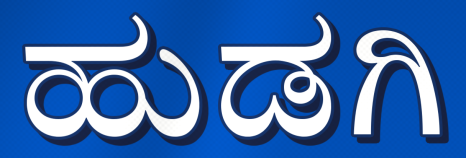
ಹುಡಗಿ